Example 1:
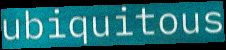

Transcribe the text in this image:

ubiquitous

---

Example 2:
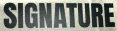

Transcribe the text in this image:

SIGNATURE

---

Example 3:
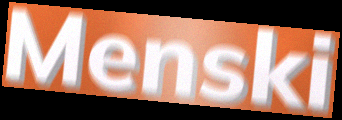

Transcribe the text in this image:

Menski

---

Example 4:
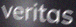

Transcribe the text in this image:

veritas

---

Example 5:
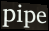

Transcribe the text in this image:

pipe